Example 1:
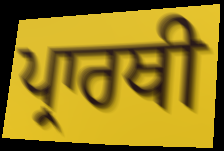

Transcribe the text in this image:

ਪ੍ਰਾਰਥੀ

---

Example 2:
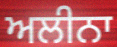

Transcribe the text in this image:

ਅਲੀਨਾ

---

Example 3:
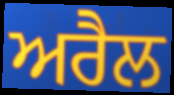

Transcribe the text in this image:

ਅਰੈਲ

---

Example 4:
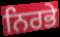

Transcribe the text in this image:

ਨਿਰਭੇ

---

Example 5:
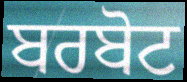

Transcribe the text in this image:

ਬਰਬੋਟ